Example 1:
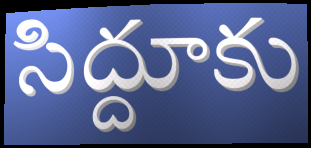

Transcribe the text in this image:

సిద్దూకు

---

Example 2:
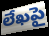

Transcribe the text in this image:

లేఖపై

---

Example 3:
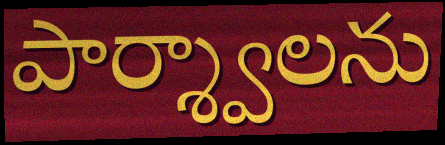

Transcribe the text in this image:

పార్శ్వాలను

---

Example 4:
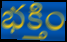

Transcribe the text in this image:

భక్తిం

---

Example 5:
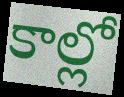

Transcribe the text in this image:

కాల్లో